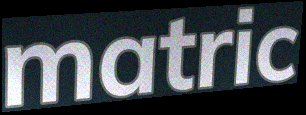
matric